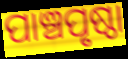
ପାଞ୍ଚପୃଷ୍ଠା